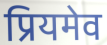
प्रियमेव